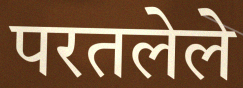
परतलेले